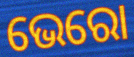
ଭେରୋ